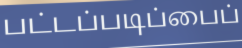
பட்டப்படிப்பைப்